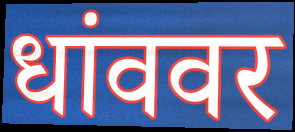
धांववर